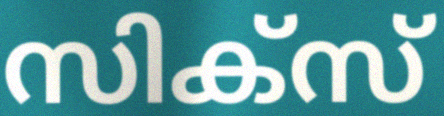
സിക്സ്